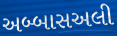
અબ્બાસઅલી